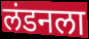
लंडनला